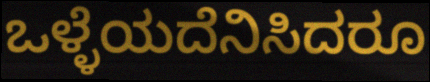
ಒಳ್ಳೆಯದೆನಿಸಿದರೂ